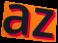
az